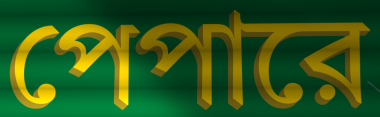
পেপারে